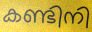
കണ്ടിനി